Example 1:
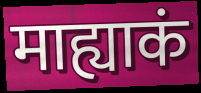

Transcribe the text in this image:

माह्याकं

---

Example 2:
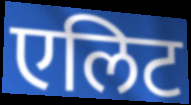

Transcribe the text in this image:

एलिट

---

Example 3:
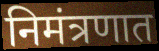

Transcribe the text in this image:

निमंत्रणात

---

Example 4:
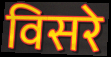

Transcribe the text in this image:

विसरे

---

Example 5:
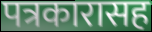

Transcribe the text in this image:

पत्रकारासह